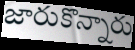
జారుకొన్నారు